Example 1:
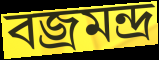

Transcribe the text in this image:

বজ্রমন্দ্র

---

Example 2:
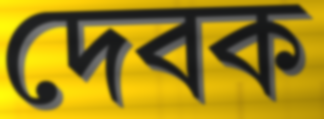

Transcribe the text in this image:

দেবক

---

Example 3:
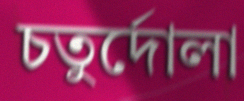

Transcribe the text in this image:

চতুর্দোলা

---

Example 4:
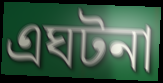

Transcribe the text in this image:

এঘটনা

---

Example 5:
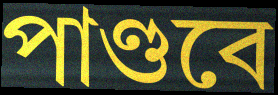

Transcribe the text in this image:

পাণ্ডবে